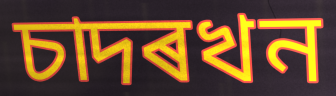
চাদৰখন